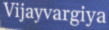
Vijayvargiya